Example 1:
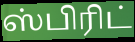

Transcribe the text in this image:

ஸ்பிரிட்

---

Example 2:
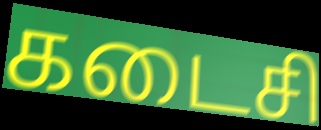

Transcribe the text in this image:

கடைசி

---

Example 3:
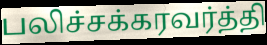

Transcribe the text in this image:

பலிச்சக்கரவர்த்தி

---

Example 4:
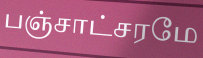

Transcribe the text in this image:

பஞ்சாட்சரமே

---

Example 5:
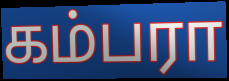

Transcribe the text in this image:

கம்பரா